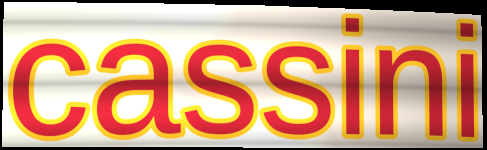
cassini